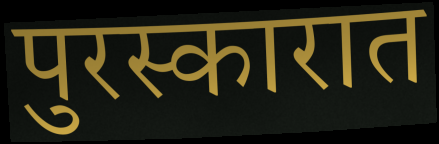
पुरस्कारात